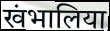
खंभालिया